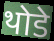
थोडे